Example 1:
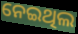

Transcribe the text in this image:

ନେଇଥିଲ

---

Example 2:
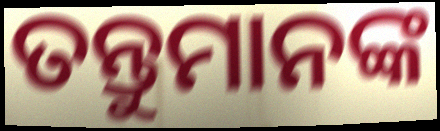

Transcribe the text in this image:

ତନ୍ତୁମାନଙ୍କ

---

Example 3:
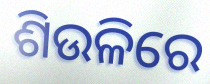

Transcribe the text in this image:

ଶିଉଳିରେ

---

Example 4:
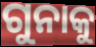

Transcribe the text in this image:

ଗୁନାକୁ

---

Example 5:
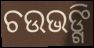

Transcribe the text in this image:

ଚଉଭଙ୍ଗି